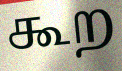
கூற